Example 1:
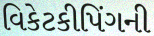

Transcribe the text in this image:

વિકેટકીપિંગની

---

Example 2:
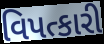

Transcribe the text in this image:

વિપત્કારી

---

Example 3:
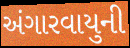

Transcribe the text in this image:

અંગારવાયુની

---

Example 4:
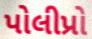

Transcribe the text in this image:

પોલીપ્રો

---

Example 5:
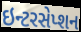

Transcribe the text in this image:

ઇન્ટરસેપ્શન